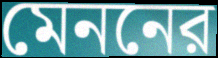
মেননের